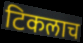
टिकलाच